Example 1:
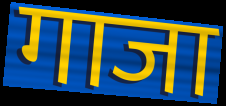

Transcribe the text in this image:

गाजा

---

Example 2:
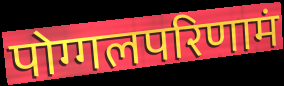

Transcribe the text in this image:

पोग्गलपरिणामं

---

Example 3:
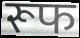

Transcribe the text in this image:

रूफ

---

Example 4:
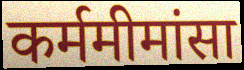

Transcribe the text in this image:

कर्ममीमांसा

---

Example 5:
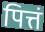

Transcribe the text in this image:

पित्तं